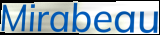
Mirabeau